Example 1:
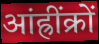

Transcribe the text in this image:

आंह्रींक्रों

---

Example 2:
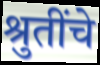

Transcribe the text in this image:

श्रुतींचे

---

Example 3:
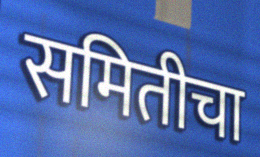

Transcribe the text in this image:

समितीचा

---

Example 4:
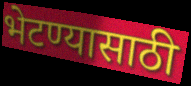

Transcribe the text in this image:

भेटण्यासाठी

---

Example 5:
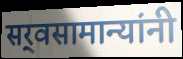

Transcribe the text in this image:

सर्वसामान्यांनी